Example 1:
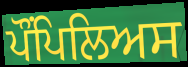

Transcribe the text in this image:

ਪੌਂਪਿਲਿਅਸ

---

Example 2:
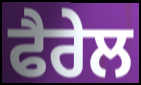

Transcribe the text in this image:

ਫੈਰੇਲ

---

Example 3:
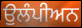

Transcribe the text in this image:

ਉੁਲੰਪੀਅਨ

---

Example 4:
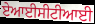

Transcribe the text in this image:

ਏਆਈਸੀਟੀਆਈ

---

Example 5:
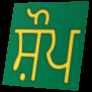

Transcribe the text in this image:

ਸ਼ੌਪ